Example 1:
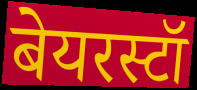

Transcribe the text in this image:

बेयरस्टॉ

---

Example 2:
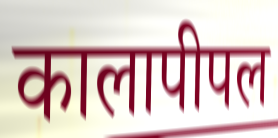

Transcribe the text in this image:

कालापीपल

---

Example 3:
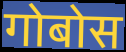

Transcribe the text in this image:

गोबोस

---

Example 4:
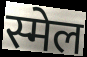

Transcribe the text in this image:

स्‍मेल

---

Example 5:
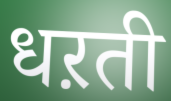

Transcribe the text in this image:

धऱती